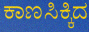
ಕಾಣಸಿಕ್ಕಿದ